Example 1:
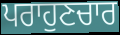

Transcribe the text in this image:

ਪਰਾਹੁਣਚਾਰ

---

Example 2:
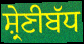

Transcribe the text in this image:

ਸ਼੍ਰੇਣੀਬੱਧ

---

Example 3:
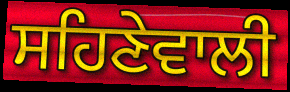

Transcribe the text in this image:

ਸਹਿਣੇਵਾਲੀ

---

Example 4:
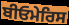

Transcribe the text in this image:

ਬੀਓਮੇਰਿਸ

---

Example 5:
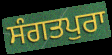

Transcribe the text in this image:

ਸੰਗਤਪੁਰਾ